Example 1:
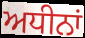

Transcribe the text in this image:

ਅਧੀਨਾਂ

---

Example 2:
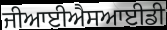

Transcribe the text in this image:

ਜੀਆਈਐਸਆਈਡੀ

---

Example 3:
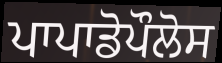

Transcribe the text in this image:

ਪਾਪਾਡੋਪੌਲੋਸ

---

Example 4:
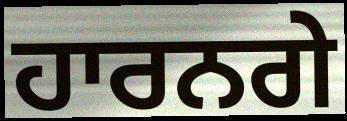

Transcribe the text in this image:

ਹਾਰਨਗੇ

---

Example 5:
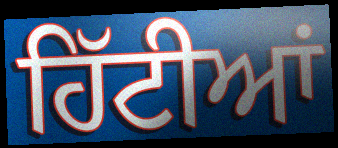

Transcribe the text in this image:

ਹਿੱਟੀਆਂ